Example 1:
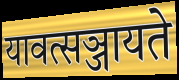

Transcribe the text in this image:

यावत्सञ्जायते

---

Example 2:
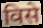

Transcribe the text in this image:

विसे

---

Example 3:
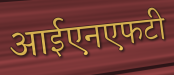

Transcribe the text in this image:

आईएनएफटी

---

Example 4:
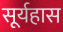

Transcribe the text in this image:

सूर्यहास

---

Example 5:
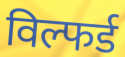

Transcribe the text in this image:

विल्फर्ड